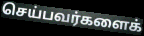
செய்பவர்களைக்